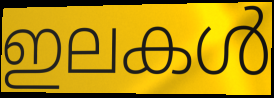
ഇലകൾ